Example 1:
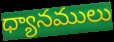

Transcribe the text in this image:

ధ్యానములు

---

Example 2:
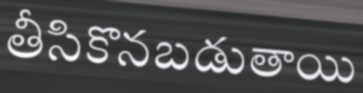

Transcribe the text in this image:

తీసికొనబడుతాయి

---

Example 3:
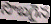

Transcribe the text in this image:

సొబగైన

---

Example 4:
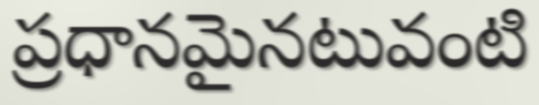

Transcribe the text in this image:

ప్రధానమైనటువంటి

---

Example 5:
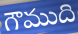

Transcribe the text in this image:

గౌముది